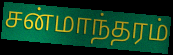
சன்மாந்தரம்